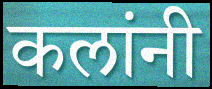
कलांनी